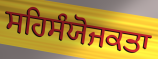
ਸਹਿਸੰਯੋਜਕਤਾ